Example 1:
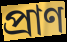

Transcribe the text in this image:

প্রাণ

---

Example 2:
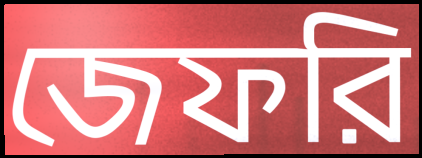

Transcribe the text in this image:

জেফরি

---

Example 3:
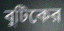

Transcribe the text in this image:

বুটিকের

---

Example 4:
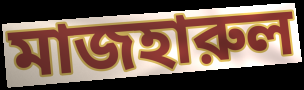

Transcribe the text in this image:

মাজহারুল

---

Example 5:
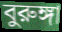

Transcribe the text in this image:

বুরুঙ্গা